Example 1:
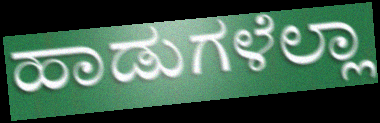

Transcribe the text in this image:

ಹಾಡುಗಳೆಲ್ಲಾ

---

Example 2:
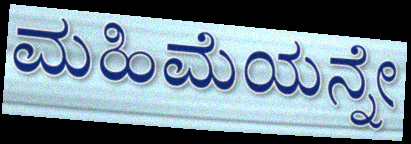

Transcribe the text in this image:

ಮಹಿಮೆಯನ್ನೇ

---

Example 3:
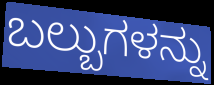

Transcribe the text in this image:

ಬಲ್ಬುಗಳನ್ನು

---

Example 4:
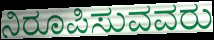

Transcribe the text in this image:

ನಿರೂಪಿಸುವವರು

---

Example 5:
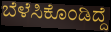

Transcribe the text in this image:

ಬೆಳೆಸಿಕೊಂಡಿದ್ದೆ